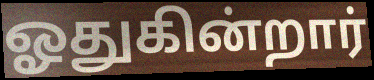
ஓதுகின்றார்